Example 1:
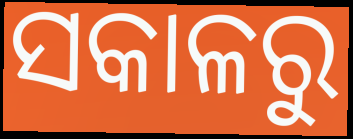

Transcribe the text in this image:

ସକାଳରୁ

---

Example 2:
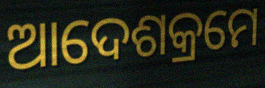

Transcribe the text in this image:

ଆଦେଶକ୍ରମେ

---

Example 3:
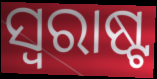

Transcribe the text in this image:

ସ୍ୱରାଷ୍ଟ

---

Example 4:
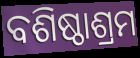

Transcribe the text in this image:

ବଶିଷ୍ଠାଶ୍ରମ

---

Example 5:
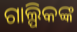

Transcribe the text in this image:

ଗାଲ୍ପିକଙ୍କ